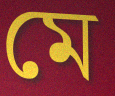
মে